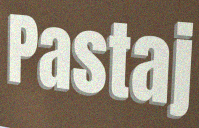
Pastaj